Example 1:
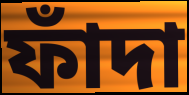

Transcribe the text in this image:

ফাঁদা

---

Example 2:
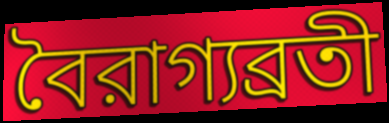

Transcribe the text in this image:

বৈরাগ্যব্রতী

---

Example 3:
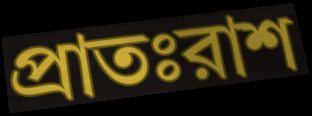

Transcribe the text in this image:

প্রাতঃরাশ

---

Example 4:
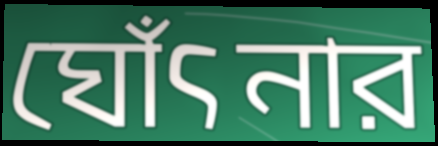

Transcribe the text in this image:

ঘোঁৎনার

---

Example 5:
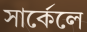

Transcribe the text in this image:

সার্কেলে